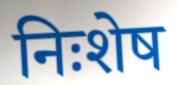
निःशेष